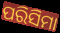
ପରିସିମା